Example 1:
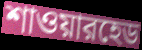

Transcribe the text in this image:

শাওয়ারহেড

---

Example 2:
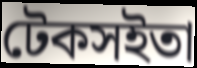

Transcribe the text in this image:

টেকসইতা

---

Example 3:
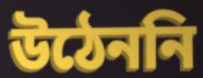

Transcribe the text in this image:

উঠেননি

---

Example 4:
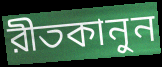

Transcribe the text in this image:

রীতকানুন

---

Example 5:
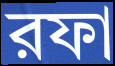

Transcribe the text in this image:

রফা